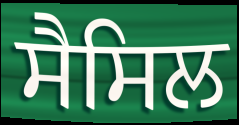
ਸੈਸਿਲ